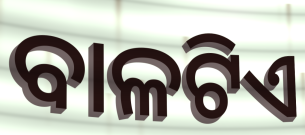
ବାଳଟିଏ